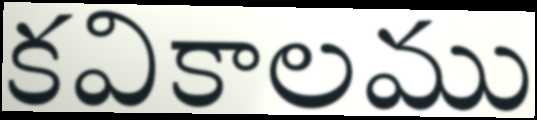
కవికాలము